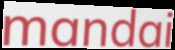
mandai